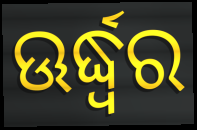
ଊର୍ଦ୍ଧ୍ଵର